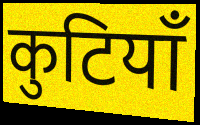
कुटियाँ